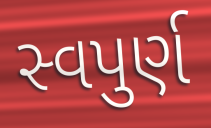
સ્વપુર્ણ